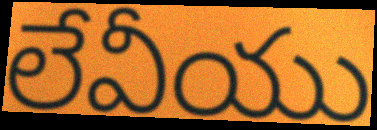
లేవీయు